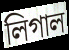
লিগাল